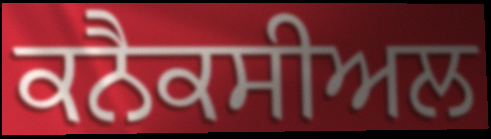
ਕਨੈਕਸੀਅਲ